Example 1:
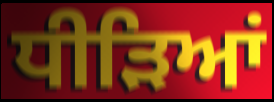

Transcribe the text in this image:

ਧੀੜਿਆਂ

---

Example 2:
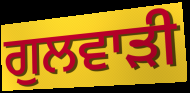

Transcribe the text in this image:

ਗੁਲਵਾੜੀ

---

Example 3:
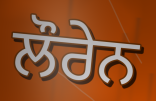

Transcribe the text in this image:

ਲੌਰੇਨ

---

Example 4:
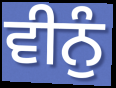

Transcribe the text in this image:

ਵੀਨੁੰ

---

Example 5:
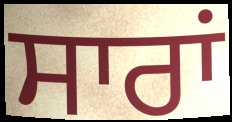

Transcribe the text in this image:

ਸਾਰਾਂ